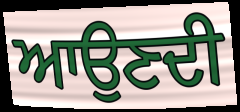
ਆਉਣਦੀ